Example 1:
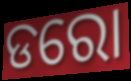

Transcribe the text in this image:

ଡରୋ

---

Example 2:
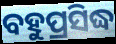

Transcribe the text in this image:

ବହୁପ୍ରସିଦ୍ଧ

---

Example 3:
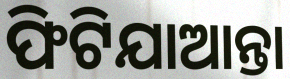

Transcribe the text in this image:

ଫିଟିଯାଆନ୍ତା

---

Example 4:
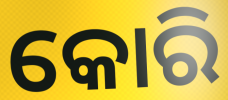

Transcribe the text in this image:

କୋରି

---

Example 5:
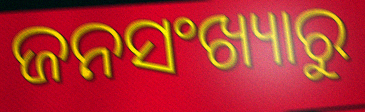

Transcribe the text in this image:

ଜନସଂଖ୍ୟାରୁ